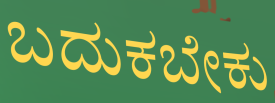
ಬದುಕಬೇಕು